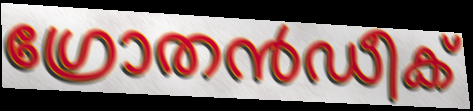
ഗ്രോതൻഡീക്